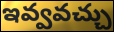
ఇవ్వవచ్చు